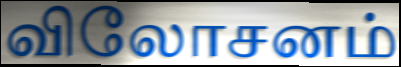
விலோசனம்